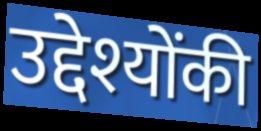
उद्देश्योंकी